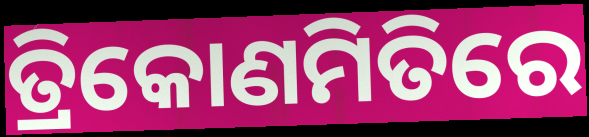
ତ୍ରିକୋଣମିତିରେ